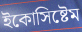
ইকোসিষ্টেম